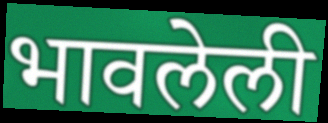
भावलेली